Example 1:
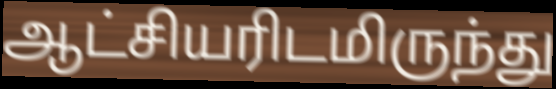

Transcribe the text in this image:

ஆட்சியரிடமிருந்து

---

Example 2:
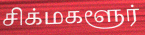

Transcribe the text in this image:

சிக்மகளூர்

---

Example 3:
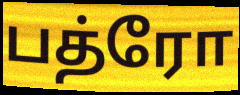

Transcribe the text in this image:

பத்ரோ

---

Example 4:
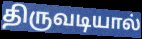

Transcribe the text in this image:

திருவடியால்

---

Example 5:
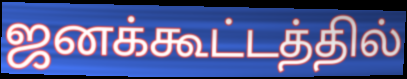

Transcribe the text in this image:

ஜனக்கூட்டத்தில்